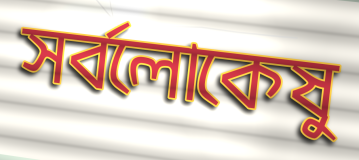
সর্বলোকেষু